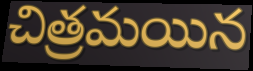
చిత్రమయిన